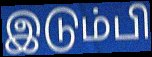
இடும்பி